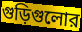
গুড়িগুলোর